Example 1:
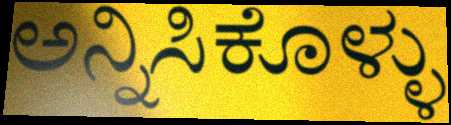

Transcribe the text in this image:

ಅನ್ನಿಸಿಕೊಳ್ಳು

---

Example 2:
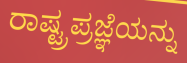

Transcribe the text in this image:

ರಾಷ್ಟ್ರಪ್ರಜ್ಞೆಯನ್ನು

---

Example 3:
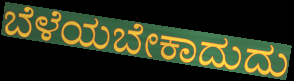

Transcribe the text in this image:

ಬೆಳೆಯಬೇಕಾದುದು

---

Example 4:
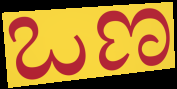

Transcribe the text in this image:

ಒಣ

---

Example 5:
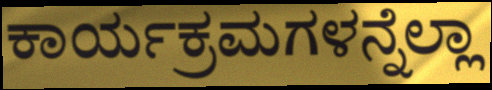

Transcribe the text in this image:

ಕಾರ್ಯಕ್ರಮಗಳನ್ನೆಲ್ಲಾ